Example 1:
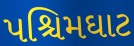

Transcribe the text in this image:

પશ્ચિમઘાટ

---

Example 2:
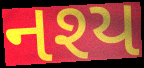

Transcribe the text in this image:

નશ્ય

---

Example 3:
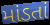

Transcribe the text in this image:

માંડતાં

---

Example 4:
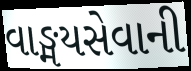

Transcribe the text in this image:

વાઙ્મયસેવાની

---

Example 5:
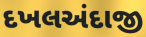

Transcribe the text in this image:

દખલઅંદાજી